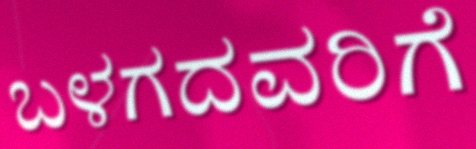
ಬಳಗದವರಿಗೆ